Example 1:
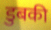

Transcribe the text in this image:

डुबकी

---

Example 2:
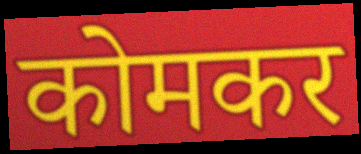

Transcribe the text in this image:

कोमकर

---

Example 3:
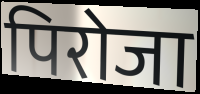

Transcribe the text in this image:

पिरोजा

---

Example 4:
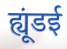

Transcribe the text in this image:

ह्यूंडई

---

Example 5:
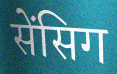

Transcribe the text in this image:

सेंसिग